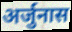
अर्जुनास